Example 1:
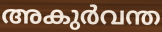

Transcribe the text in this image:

അകുർവന്ത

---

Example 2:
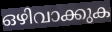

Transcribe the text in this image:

ഒഴിവാക്കുക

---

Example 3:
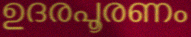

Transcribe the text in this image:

ഉദരപൂരണം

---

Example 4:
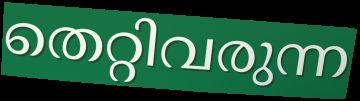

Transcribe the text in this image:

തെറ്റിവരുന്ന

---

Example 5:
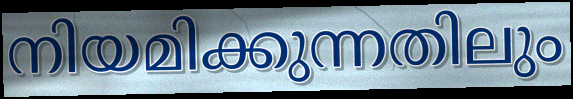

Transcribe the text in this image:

നിയമിക്കുന്നതിലും